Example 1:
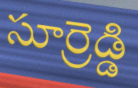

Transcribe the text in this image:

సూర్రెడ్డి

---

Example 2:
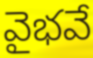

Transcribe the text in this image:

వైభవే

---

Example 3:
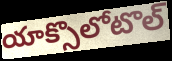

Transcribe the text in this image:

యాక్సొలోటొల్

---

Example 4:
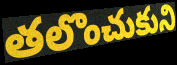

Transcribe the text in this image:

తలొంచుకుని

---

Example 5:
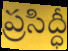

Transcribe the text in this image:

ప్రసిద్ధీ